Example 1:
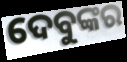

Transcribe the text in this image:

ଦେବୁଙ୍କର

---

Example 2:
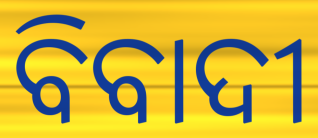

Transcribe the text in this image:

ବିବାଦୀ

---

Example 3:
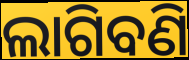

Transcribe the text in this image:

ଲାଗିବଣି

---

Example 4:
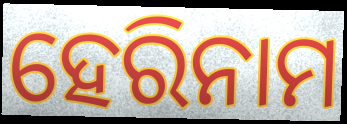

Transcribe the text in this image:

ହେରିନାମ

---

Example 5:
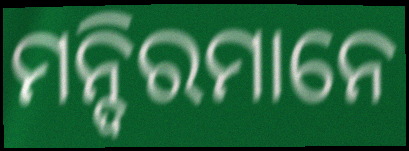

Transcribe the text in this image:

ମନ୍ଦିରମାନେ